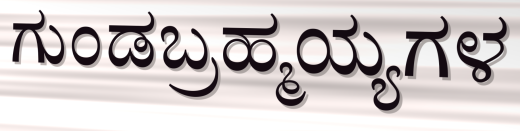
ಗುಂಡಬ್ರಹ್ಮಯ್ಯಗಳ